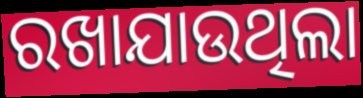
ରଖାଯାଉଥିଲା